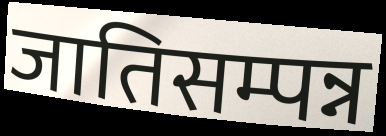
जातिसम्पन्न